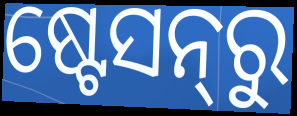
ଷ୍ଟେସନ୍‌ରୁ